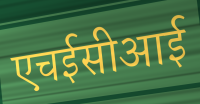
एचईसीआई